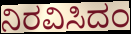
ನಿರವಿಸಿದಂ